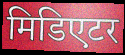
मिडिएटर